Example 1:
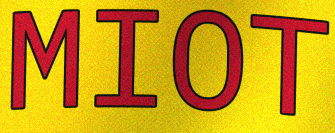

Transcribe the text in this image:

MIOT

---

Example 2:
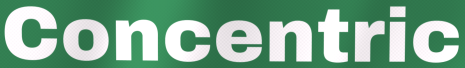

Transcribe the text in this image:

Concentric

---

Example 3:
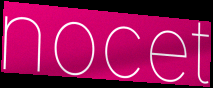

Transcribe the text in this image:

nocet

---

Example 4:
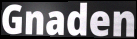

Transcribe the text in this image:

Gnaden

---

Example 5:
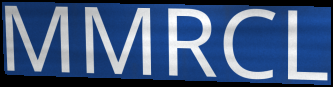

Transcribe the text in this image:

MMRCL